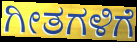
ಗೀತಗಳಿಗೆ